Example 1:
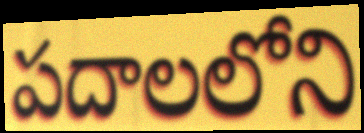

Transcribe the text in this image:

పదాలలోని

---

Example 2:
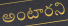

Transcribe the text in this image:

అంటారని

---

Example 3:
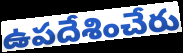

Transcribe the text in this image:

ఉపదేశించేరు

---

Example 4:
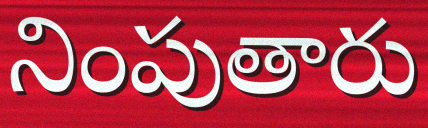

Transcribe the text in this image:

నింపుతారు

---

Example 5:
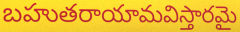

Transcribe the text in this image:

బహుతరాయామవిస్తారమై